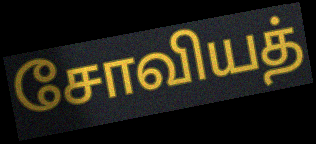
சோவியத்